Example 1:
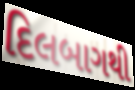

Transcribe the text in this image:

દિલબાગથી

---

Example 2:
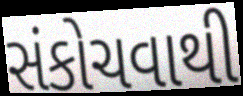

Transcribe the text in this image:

સંકોચવાથી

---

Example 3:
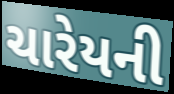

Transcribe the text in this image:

ચારેયની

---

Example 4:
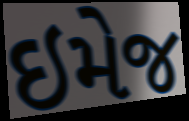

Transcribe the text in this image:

ઇમેજ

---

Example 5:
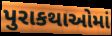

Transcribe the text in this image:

પુરાકથાઓમાં